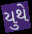
યુથે